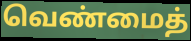
வெண்மைத்